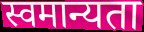
स्वमान्यता